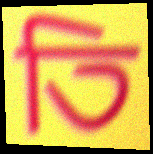
তি